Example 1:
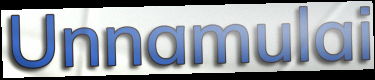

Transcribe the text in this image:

Unnamulai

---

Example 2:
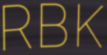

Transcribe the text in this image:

RBK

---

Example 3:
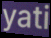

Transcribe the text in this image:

yati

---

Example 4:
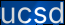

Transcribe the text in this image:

ucsd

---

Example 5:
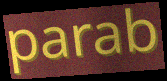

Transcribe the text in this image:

parab